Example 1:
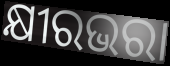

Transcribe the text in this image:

କ୍ଷୀରଭରା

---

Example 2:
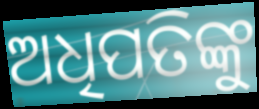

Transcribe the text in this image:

ଅଧିପତିଙ୍କୁ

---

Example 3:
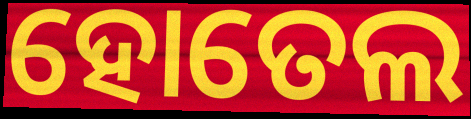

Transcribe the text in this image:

ହୋତେଲ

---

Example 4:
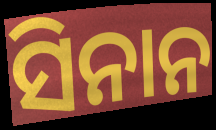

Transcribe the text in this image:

ସିନାନ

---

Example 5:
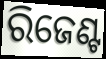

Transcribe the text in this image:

ରିଜେଣ୍ଟ